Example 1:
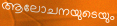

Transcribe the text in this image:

ആലോചനയുടെയും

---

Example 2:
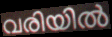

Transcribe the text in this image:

വരിയിൽ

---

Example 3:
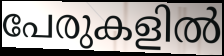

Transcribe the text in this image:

പേരുകളിൽ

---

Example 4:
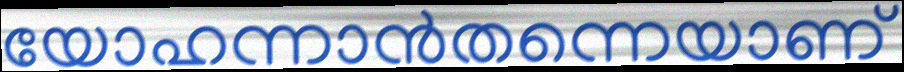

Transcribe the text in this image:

യോഹന്നാൻതന്നെയാണ്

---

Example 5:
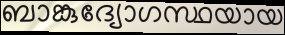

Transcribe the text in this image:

ബാങ്കുദ്യോഗസ്ഥയായ